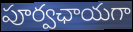
పూర్వఛాయగా